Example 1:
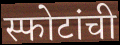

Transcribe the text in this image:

स्फोटांची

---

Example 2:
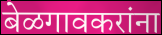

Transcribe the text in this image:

बेळगावकरांना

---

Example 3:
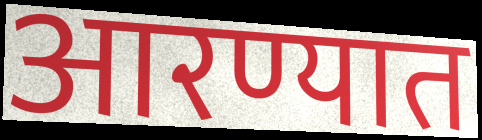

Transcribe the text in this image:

आरण्यात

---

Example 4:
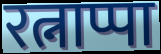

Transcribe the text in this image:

रत्नाप्पा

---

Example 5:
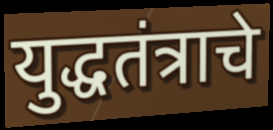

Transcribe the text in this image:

युद्धतंत्राचे